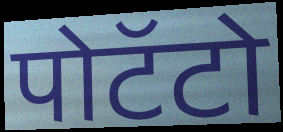
पोटॅटो